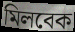
মিলবেক